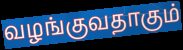
வழங்குவதாகும்